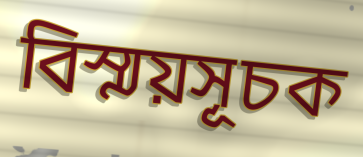
বিস্ময়সূচক